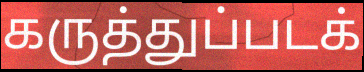
கருத்துப்படக்